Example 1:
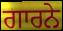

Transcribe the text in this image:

ਗਾਰਨੇ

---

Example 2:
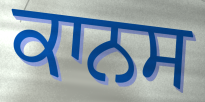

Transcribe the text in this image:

ਕਾਨਸ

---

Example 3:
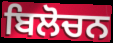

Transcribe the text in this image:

ਬਿਲੋਚਨ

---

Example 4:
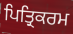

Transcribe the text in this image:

ਪਿਤ੍ਰਿਕਰਮ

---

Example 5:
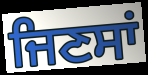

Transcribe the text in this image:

ਜਿਣਸਾਂ